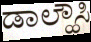
ಡಾಲ್ಹೌಸಿ